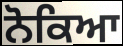
ਨੋਕਿਆ